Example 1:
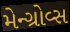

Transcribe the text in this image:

મેન્ગ્રોવ્સ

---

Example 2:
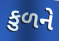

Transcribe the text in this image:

કુળને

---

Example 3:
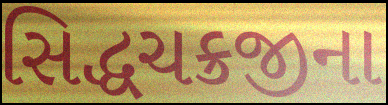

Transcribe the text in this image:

સિદ્ધચક્રજીના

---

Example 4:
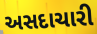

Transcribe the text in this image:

અસદાચારી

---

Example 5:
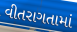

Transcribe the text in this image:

વીતરાગતામાં